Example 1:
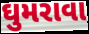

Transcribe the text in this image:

ઘુમરાવા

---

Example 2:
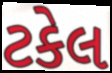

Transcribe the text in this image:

ટકેલ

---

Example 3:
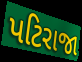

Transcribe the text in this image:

પટિરાજા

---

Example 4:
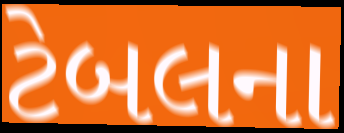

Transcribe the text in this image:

ટેબલના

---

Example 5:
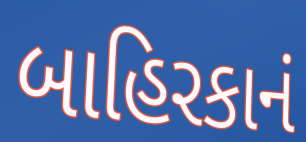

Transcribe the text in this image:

બાહિરકાનં